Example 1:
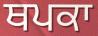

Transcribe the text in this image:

ਥਪਕਾ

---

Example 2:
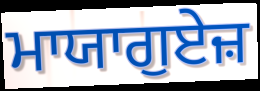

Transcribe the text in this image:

ਮਾਯਾਗੁਏਜ਼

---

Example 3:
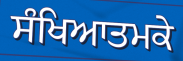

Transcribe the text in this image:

ਸੰਖਿਆਤਮਕੇ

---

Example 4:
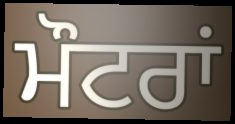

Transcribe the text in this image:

ਮੌਟਰਾਂ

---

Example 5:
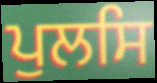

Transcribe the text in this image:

ਪੁਲਸਿ